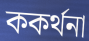
ককৰ্থনা